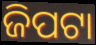
ଜିପଟା